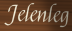
Jelenleg